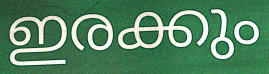
ഇരക്കും